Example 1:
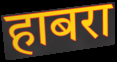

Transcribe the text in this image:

हाबरा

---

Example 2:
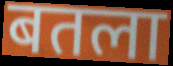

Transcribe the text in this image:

बतला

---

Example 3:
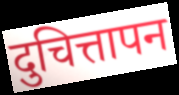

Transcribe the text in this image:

दुचित्तापन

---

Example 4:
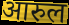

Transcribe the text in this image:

आरुल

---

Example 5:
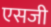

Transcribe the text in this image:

एसजी